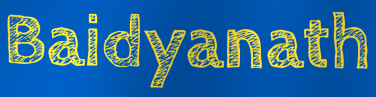
Baidyanath